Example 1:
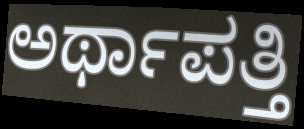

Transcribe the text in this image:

ಅರ್ಥಾಪತ್ತಿ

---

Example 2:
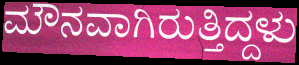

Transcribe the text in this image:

ಮೌನವಾಗಿರುತ್ತಿದ್ದಳು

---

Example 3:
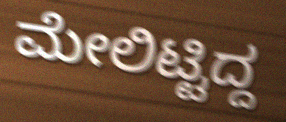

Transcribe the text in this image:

ಮೇಲಿಟ್ಟಿದ್ದ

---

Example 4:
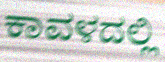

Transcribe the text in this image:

ಕಾವಳದಲ್ಲಿ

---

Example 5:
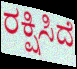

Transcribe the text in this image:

ರಕ್ಷಿಸಿದೆ